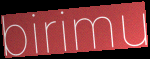
birimu